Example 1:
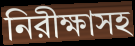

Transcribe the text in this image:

নিরীক্ষাসহ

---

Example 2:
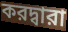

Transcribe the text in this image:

করদ্বারা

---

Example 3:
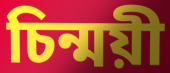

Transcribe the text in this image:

চিন্ময়ী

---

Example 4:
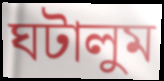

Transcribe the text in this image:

ঘটালুম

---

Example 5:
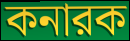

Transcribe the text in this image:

কনারক